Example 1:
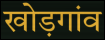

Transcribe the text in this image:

खोड़गांव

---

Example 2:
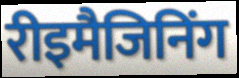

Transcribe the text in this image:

रीइमैजिनिंग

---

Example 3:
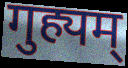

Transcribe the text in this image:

गुह्यम्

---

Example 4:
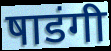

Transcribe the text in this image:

षाडंगी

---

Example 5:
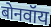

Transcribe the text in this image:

बोनवॉय